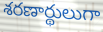
శరణార్థులుగా